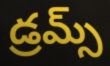
డ్రమ్స్